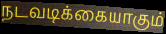
நடவடிக்கையாகும்